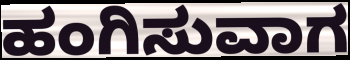
ಹಂಗಿಸುವಾಗ